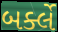
બર્ક્લે